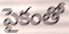
పైకంతో